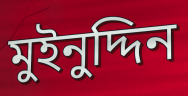
মুইনুদ্দিন